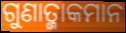
ଗୁଣାତ୍ଜାକମାନ